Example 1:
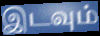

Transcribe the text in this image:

இடவும்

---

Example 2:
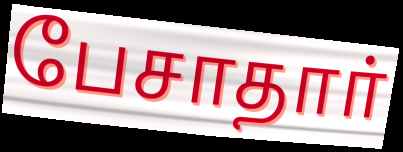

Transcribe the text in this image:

பேசாதார்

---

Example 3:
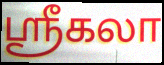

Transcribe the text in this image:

ஶ்ரீகலா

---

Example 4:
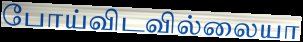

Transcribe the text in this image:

போய்விடவில்லையா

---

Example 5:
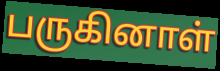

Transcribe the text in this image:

பருகினாள்